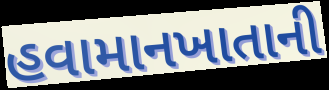
હવામાનખાતાની